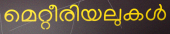
മെറ്റീരിയലുകൾ